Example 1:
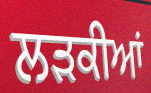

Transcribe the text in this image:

ਲੜਕੀਆਂ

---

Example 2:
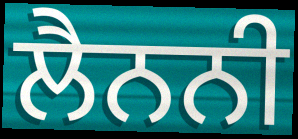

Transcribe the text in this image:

ਲੈਨਨੀ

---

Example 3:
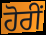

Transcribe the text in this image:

ਹੋਰੀਂ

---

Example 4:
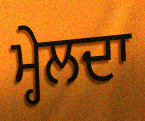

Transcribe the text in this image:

ਮ੍ਹੇਲਦਾ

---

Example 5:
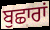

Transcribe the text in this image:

ਬੁਛਾਰਾਂ